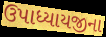
ઉપાધ્યાયજીના